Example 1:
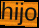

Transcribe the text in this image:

hijo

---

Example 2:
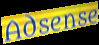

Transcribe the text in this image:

Adsense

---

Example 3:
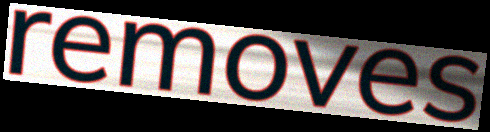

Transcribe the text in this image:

removes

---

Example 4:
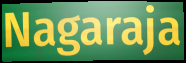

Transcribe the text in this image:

Nagaraja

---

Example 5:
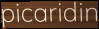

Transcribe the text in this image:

picaridin